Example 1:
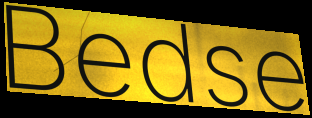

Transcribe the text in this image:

Bedse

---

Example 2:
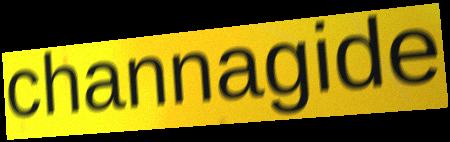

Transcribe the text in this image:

channagide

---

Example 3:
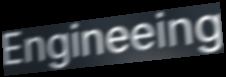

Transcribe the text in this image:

Engineeing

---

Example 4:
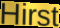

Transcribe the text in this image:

Hirst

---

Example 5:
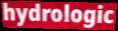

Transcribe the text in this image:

hydrologic